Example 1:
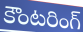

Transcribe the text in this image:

కౌంటరింగ్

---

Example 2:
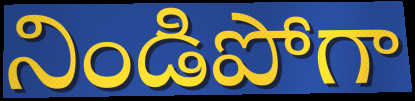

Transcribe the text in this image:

నిండిపోగా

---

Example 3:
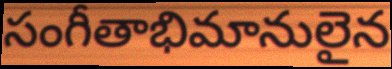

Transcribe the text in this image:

సంగీతాభిమానులైన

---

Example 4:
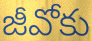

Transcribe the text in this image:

జీవోకు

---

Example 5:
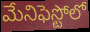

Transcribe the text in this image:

మేనిఫెస్టోలో